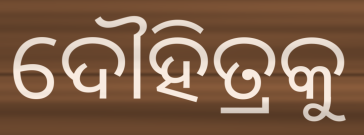
ଦୌହିତ୍ରକୁ